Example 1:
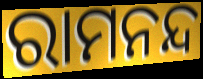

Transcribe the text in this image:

ରାମନନ୍ଦ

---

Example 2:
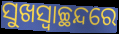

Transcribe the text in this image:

ସୁଖସ୍ୱାଚ୍ଛନ୍ଦରେ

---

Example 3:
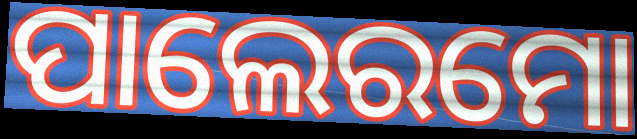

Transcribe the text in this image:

ପାଲେରମୋ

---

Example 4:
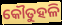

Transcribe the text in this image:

କୌତୁହଳି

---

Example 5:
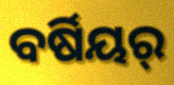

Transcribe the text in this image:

ବର୍ଷିୟର୍